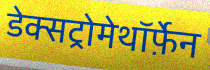
डेक्सट्रोमेथॉर्फ़ेन